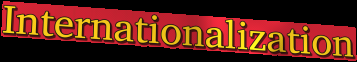
Internationalization